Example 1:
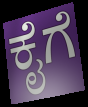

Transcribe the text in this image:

ಕೈಗೆ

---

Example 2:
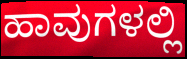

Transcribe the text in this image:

ಹಾವುಗಳಲ್ಲಿ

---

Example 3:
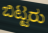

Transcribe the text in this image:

ಬಿಟ್ಟರು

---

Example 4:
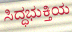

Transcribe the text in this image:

ಸಿದ್ಧಭುಕ್ತಿಯ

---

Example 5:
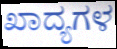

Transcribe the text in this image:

ಖಾದ್ಯಗಳ